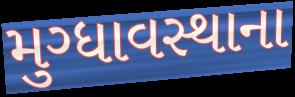
મુગ્ધાવસ્થાના